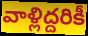
వాళ్లిద్దరికీ